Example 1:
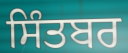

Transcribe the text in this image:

ਸਿੰਤਬਰ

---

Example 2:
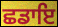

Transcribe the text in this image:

ਛਡਾਇ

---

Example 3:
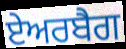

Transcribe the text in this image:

ਏਅਰਬੈਗ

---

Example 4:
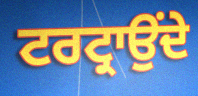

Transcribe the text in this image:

ਟਰਟ੍ਰਾਉਂਦੇ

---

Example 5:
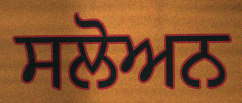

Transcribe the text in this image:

ਸਲੋਅਨ